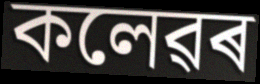
কলেৱৰ